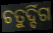
ଚତୁର୍ଦ୍ଦିଗ